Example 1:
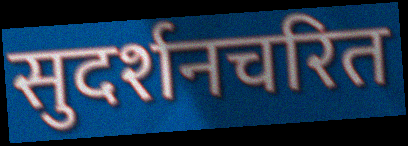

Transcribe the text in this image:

सुदर्शनचरित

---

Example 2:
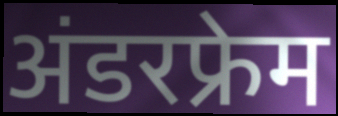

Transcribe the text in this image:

अंडरफ्रेम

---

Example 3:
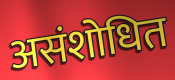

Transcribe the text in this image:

असंशोधित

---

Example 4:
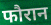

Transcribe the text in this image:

फौरान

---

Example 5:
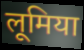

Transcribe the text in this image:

लूमिया